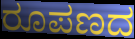
ರೂಪಣದ